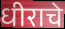
धीराचे